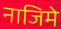
नाजिमे